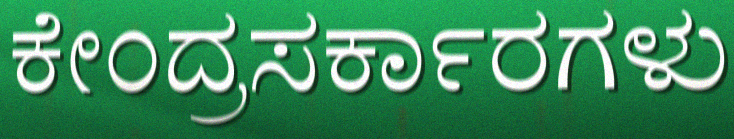
ಕೇಂದ್ರಸರ್ಕಾರಗಳು